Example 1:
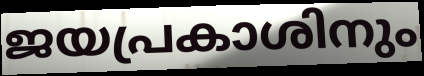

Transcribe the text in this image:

ജയപ്രകാശിനും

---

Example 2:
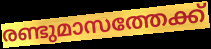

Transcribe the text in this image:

രണ്ടുമാസത്തേക്ക്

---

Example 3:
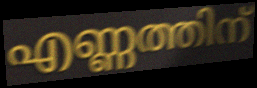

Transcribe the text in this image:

എണ്ണത്തിന്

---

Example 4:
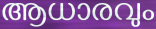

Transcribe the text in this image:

ആധാരവും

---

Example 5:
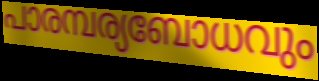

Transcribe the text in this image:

പാരമ്പര്യബോധവും